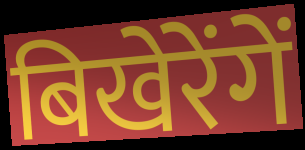
बिखेरेंगें